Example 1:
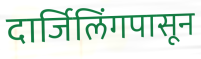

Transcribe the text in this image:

दार्जिलिंगपासून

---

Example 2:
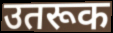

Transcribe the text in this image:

उतरूक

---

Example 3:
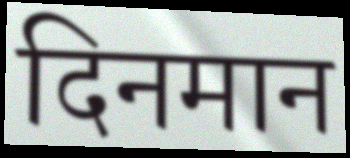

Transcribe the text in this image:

दिनमान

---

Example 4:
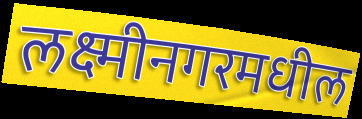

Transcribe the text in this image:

लक्ष्मीनगरमधील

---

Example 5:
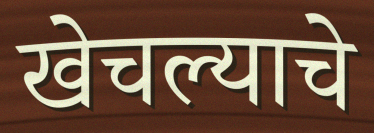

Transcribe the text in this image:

खेचल्याचे